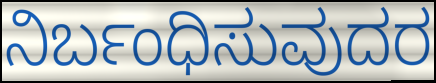
ನಿರ್ಬಂಧಿಸುವುದರ